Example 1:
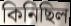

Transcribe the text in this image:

কিনিছিল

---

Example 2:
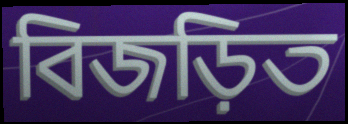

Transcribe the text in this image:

বিজড়িত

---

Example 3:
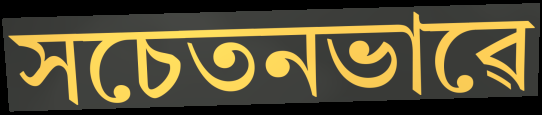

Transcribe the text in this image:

সচেতনভাৱে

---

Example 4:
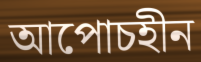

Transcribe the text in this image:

আপোচহীন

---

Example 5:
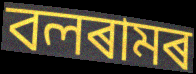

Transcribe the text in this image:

বলৰামৰ